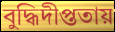
বুদ্ধিদীপ্ততায়